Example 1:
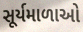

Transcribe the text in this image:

સૂર્યમાળાઓ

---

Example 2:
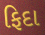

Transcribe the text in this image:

ફિદા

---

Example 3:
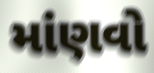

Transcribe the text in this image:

માંણવો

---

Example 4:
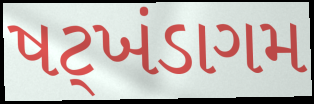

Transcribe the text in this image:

ષટ્ખંડાગમ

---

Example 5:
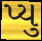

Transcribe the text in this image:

પ્યુ